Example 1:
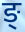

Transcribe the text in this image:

ङ्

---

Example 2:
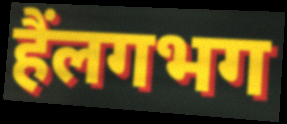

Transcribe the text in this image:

हैंलगभग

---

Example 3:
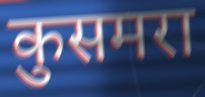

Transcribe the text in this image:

कुसमरा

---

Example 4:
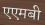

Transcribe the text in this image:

एएमबी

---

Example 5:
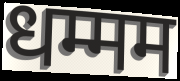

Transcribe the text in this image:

धम्मम